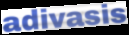
adivasis